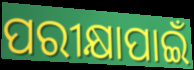
ପରୀକ୍ଷାପାଇଁ